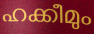
ഹക്കീമും